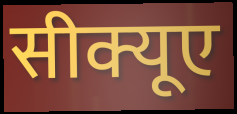
सीक्यूए